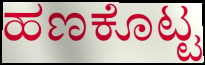
ಹಣಕೊಟ್ಟ